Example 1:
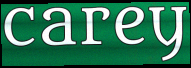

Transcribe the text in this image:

carey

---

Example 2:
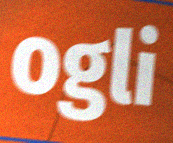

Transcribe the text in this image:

ogli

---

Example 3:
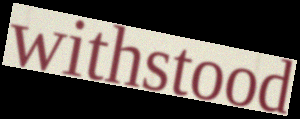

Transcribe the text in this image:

withstood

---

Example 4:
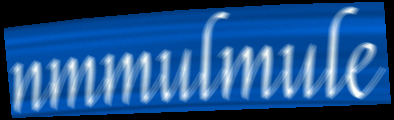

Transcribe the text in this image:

nmmulmule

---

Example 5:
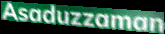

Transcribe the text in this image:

Asaduzzaman